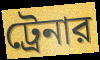
ট্রেনার